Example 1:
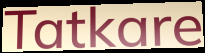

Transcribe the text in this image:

Tatkare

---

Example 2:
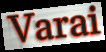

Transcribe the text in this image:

Varai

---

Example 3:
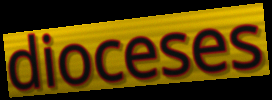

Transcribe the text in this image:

dioceses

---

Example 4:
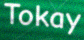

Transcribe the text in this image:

Tokay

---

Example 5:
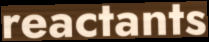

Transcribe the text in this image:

reactants